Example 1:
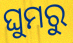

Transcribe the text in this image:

ଘୁମରୁ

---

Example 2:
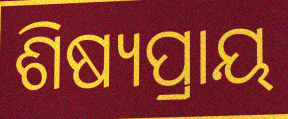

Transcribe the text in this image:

ଶିଷ୍ୟପ୍ରାୟ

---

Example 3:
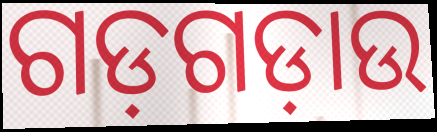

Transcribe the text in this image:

ଗଡ଼ଗଡ଼ାଉ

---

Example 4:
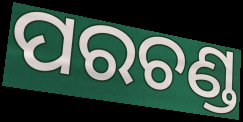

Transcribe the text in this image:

ପରଚଣ୍ଡ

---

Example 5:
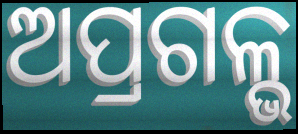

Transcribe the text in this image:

ଅପ୍ରଗଳ୍ଭ